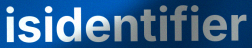
isidentifier